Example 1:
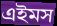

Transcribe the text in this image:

এইমস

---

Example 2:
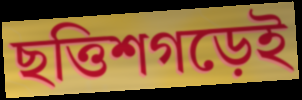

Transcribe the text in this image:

ছত্তিশগড়েই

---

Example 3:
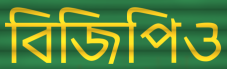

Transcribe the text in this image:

বিজিপিও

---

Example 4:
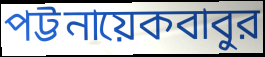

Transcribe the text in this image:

পট্টনায়েকবাবুর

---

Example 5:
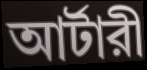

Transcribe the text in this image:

আর্টারী